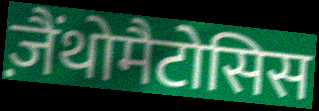
ज़ैंथोमैटोसिस